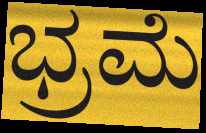
ಭ್ರಮೆ